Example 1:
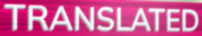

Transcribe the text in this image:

TRANSLATED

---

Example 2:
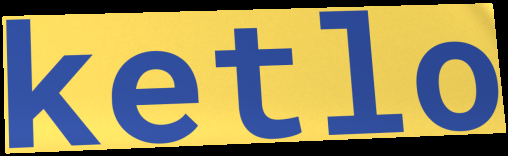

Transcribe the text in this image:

ketlo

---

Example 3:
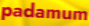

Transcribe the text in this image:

padamum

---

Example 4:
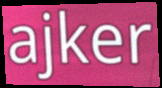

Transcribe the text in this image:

ajker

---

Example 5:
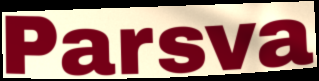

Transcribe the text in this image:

Parsva